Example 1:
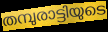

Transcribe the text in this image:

തമ്പുരാട്ടിയുടെ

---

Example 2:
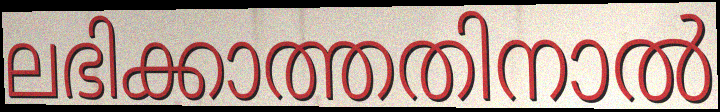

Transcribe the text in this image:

ലഭിക്കാത്തതിനാൽ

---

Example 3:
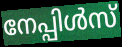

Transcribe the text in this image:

നേപ്പിൾസ്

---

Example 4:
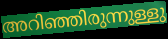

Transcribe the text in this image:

അറിഞ്ഞിരുന്നുള്ളു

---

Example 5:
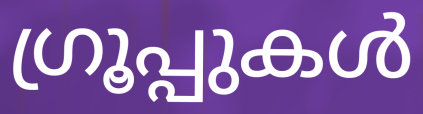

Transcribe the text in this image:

ഗ്രൂപ്പുകൾ